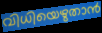
വിധിയെഴുതാൻ